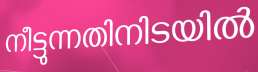
നീട്ടുന്നതിനിടയിൽ